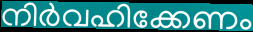
നിർവഹിക്കേണം